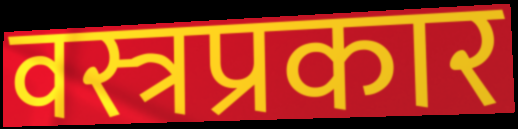
वस्त्रप्रकार